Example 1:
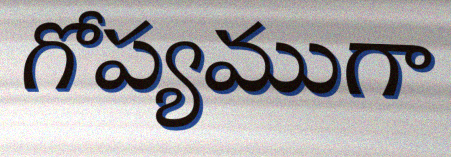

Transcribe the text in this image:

గోప్యముగా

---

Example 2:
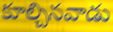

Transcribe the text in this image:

కూల్చినవాడు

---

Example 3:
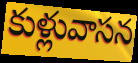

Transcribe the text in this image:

కుళ్లువాసన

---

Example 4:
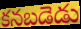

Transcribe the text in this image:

కనబడెడు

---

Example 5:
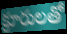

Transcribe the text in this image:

క్రూరులతో